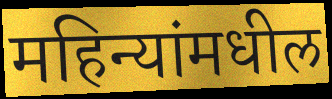
महिन्यांमधील